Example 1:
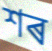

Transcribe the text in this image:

শৰ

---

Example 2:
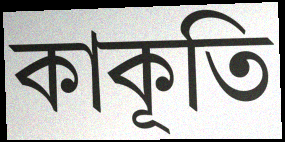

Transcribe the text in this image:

কাকূতি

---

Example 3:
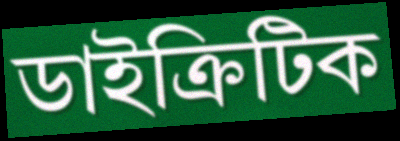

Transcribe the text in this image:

ডাইক্ৰিটিক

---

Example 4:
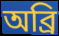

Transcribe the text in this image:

অব্ৰি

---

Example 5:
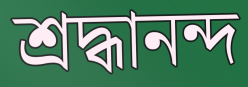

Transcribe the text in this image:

শ্ৰদ্ধানন্দ